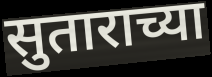
सुताराच्या